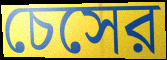
চেসের